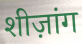
शीज़ांग